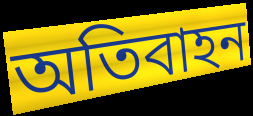
অতিবাহন